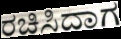
ರಚಿಸಿದಾಗ